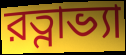
রত্নাভ্যা